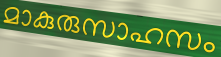
മാകുരുസാഹസം